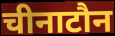
चीनाटौन